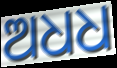
ଅଧଧ